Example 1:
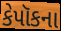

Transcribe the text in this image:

કેપૉકના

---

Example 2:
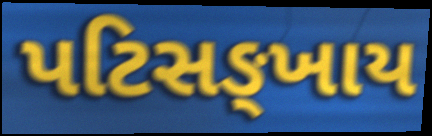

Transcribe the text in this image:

પટિસઙ્ખાય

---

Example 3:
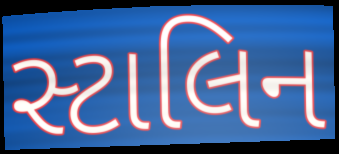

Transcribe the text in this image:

સ્ટાલિન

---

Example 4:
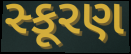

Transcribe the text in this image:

સ્કૂરણ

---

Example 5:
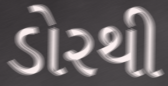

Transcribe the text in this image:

ડોરથી